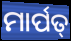
ମାର୍ପତ୍